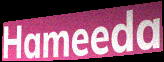
Hameeda